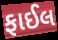
ફાઈલ